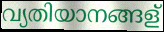
വ്യതിയാനങ്ങള്